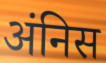
अंनिस